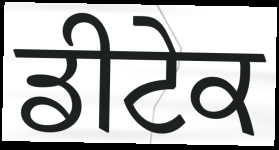
ਡੀਟੇਕ